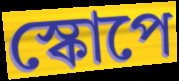
স্কোপে